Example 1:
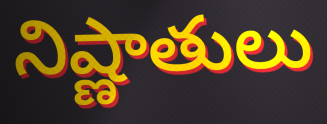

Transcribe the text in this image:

నిష్ణాతులు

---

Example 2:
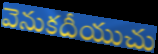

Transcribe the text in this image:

వెనుకదీయుచు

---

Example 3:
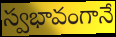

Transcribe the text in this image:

స్వభావంగానే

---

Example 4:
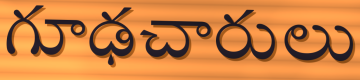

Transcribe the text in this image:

గూఢచారులు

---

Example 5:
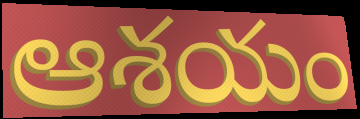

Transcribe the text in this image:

ఆశయం